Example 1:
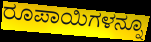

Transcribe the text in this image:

ರೂಪಾಯಿಗಳನ್ನೂ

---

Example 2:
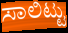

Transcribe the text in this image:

ಸಾಲಿಟ್ಟು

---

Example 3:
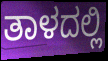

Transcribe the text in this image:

ತಾಳದಲ್ಲಿ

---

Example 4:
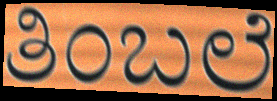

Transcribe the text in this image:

ತಿಂಬಲೆ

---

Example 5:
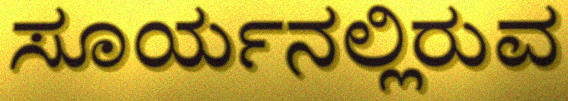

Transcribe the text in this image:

ಸೂರ್ಯನಲ್ಲಿರುವ